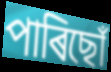
পাৰিছোঁ